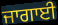
ਜਾਗਾਈ